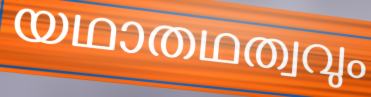
യഥാതഥത്വവും